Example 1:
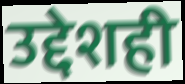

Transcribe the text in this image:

उद्देशही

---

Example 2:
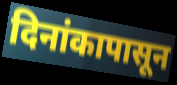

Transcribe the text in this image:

दिनांकापासून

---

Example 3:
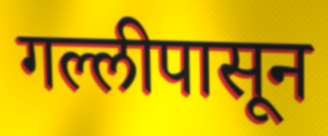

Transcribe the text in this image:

गल्लीपासून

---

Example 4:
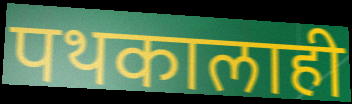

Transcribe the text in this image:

पथकालाही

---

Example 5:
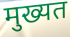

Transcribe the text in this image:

मुख्यत